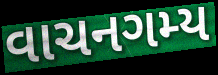
વાચનગમ્ય